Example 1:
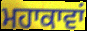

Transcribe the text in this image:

ਮਹਾਕਾਵਾਂ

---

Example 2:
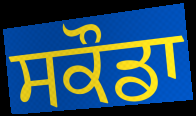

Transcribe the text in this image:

ਸਕੌਡਾ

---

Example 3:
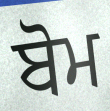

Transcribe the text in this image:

ਬੋਮ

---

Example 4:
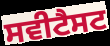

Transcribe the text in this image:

ਸਵੀਟੈਸਟ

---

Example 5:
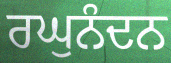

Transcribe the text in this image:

ਰਘੁਨੰਦਨ